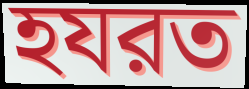
হযরত